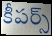
కీపర్స్